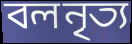
বলনৃত্য